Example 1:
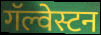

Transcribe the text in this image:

गॅल्वेस्टन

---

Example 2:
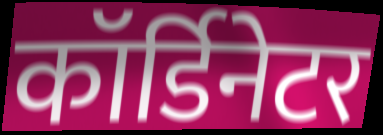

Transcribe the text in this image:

कॉर्डिनेटर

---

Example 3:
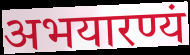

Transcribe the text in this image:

अभयारण्यं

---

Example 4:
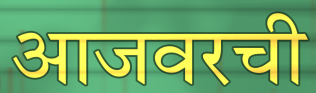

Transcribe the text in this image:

आजवरची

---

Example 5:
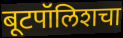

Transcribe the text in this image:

बूटपॉलिशचा